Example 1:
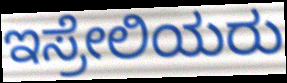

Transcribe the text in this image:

ಇಸ್ರೇಲಿಯರು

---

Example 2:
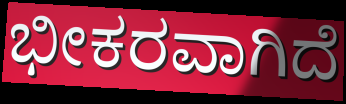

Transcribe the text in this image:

ಭೀಕರವಾಗಿದೆ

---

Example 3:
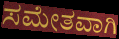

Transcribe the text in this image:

ಸಮೇತವಾಗಿ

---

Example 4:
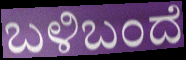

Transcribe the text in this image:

ಬಳಿಬಂದೆ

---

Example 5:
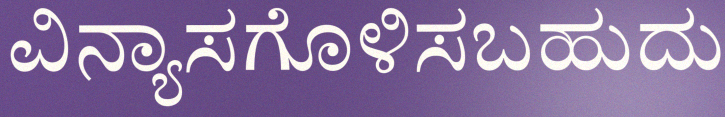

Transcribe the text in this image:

ವಿನ್ಯಾಸಗೊಳಿಸಬಹುದು